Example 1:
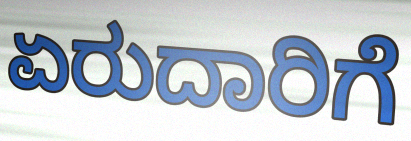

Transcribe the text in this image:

ಏರುದಾರಿಗೆ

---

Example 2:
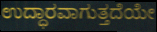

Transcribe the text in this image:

ಉದ್ಧಾರವಾಗುತ್ತದೆಯೇ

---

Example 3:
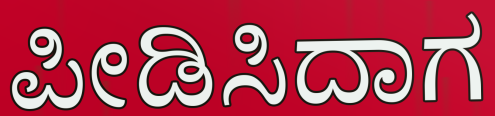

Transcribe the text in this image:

ಪೀಡಿಸಿದಾಗ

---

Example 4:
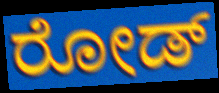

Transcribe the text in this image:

ರೋಡ್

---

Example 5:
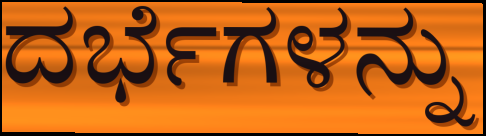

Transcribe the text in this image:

ದರ್ಭೆಗಳನ್ನು